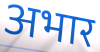
अभार